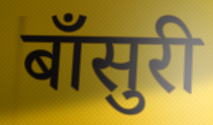
बाँसुरी